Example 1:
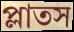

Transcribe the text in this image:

প্লাতস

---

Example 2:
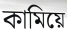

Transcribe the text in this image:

কামিয়ে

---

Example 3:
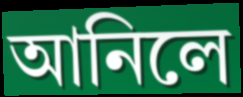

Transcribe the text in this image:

আনিলে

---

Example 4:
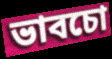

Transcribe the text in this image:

ভাবচো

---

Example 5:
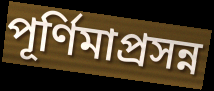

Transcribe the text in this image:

পূর্ণিমাপ্রসন্ন